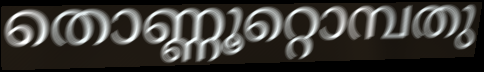
തൊണ്ണൂറ്റൊമ്പതു